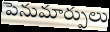
పెనుమార్పులు